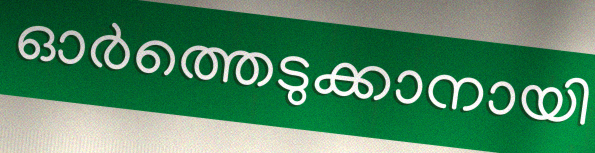
ഓർത്തെടുക്കാനായി